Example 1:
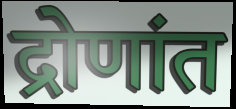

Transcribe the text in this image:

द्रोणांत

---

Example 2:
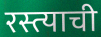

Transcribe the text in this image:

रस्त्याची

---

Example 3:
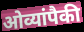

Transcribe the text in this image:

ओव्यांपैकी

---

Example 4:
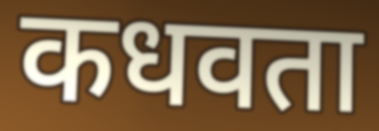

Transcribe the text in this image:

कधवता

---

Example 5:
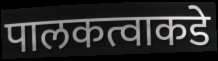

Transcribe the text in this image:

पालकत्वाकडे